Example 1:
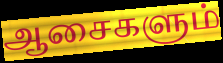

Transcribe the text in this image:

ஆசைகளும்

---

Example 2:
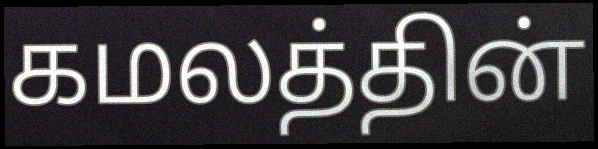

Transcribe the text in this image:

கமலத்தின்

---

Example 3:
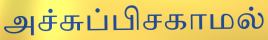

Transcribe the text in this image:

அச்சுப்பிசகாமல்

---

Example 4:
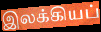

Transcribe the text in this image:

இலக்கியப்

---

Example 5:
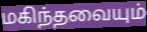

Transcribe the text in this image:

மகிந்தவையும்